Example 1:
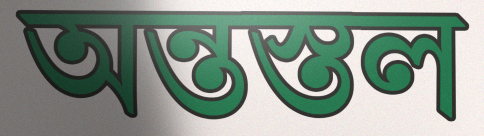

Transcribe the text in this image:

অন্তস্তল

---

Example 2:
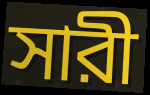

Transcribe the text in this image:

সারী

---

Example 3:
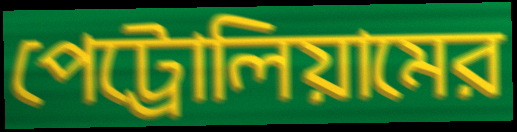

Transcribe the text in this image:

পেট্রোলিয়ামের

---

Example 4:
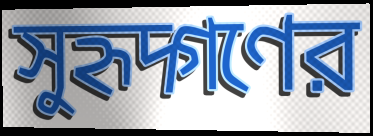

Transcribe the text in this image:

সুহৃদ্গণের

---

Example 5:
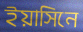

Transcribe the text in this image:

ইয়াসিনে